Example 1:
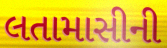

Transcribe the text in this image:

લતામાસીની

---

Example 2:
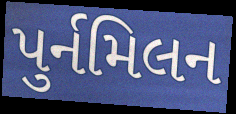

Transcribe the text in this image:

પુર્નમિલન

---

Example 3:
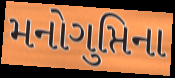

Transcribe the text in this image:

મનોગુપ્તિના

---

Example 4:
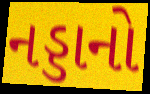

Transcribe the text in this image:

નડ્ડાનો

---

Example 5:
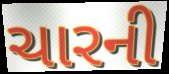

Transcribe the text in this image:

ચારની